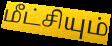
மீட்சியும்